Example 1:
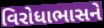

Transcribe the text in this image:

વિરોધાભાસને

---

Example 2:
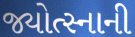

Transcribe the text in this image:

જ્યોત્સ્નાની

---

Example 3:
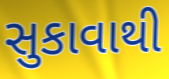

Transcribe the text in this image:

સુકાવાથી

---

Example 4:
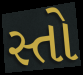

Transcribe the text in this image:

સ્તો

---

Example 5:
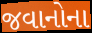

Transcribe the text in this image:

જવાનોના